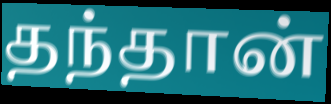
தந்தான்